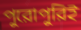
পুরোপুরিই